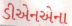
ડીએનએના